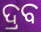
ଦ୍ରବ